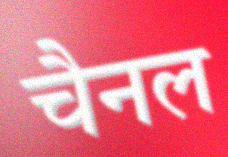
चैनल